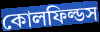
কোলফিল্ডস